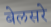
बेलसरे